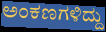
ಅಂಕಣಗಳಿದ್ದು